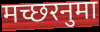
मच्छरनुमा